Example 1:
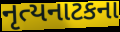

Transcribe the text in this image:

નૃત્યનાટકના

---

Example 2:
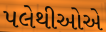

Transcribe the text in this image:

પલેથીઓએ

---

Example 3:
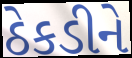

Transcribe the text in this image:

ઠેકડીને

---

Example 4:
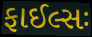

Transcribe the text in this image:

ફાઈલ્સઃ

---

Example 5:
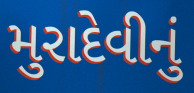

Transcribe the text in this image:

મુરાદેવીનું